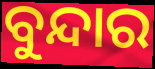
ବୁନ୍ଦାର